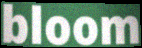
bloom